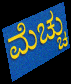
ಮೆಚ್ಚು